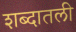
शब्दातली